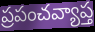
ప్రపంచవ్యాప్త